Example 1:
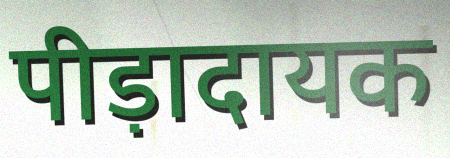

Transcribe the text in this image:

पीड़ादायक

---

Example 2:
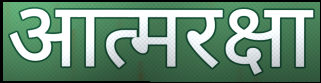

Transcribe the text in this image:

आत्मरक्षा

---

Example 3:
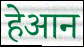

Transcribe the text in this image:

हेआन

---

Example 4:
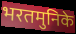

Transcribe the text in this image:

भरतमुनिके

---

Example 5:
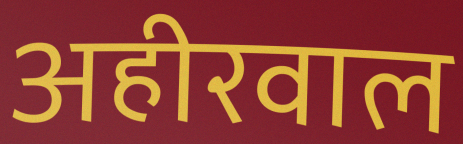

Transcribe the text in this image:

अहीरवाल